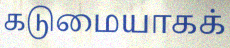
கடுமையாகக்